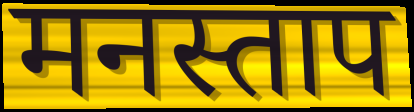
मनस्ताप